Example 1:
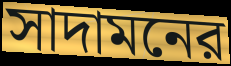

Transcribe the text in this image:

সাদামনের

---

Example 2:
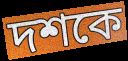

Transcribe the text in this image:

দশকে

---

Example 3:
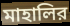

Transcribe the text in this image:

মাহালির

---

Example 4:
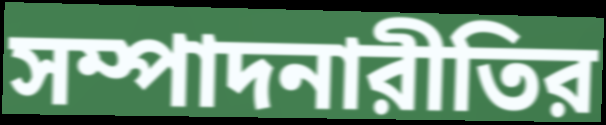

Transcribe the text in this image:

সম্পাদনারীতির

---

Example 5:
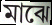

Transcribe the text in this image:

মাঝে